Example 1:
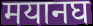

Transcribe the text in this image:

मयानघ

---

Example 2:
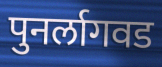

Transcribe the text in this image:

पुनर्लागवड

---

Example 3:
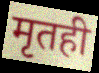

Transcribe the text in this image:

मृतही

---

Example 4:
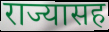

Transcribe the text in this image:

राज्यासह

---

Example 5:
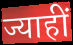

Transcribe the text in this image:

ज्याहीं